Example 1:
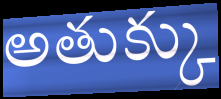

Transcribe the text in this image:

అతుక్కు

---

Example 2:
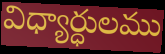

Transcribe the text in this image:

విధ్యార్ధులము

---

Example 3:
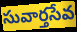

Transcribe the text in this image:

సువార్తసేవ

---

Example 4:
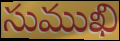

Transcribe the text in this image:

సుముఖి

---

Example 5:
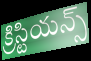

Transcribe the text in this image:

క్రిస్టియన్స్